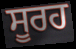
ਸੂਰਹ